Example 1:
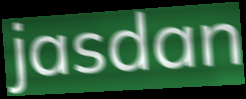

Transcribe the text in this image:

jasdan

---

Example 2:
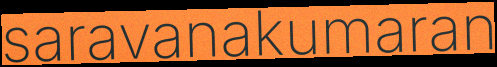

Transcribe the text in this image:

saravanakumaran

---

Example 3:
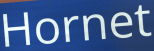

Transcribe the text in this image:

Hornet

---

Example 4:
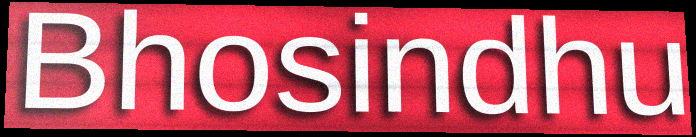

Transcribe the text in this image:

Bhosindhu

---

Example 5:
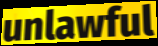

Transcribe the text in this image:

unlawful